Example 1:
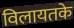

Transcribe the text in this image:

विलायतके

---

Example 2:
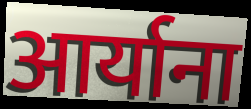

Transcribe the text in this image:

आर्याना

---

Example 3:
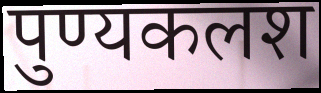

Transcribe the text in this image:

पुण्यकलश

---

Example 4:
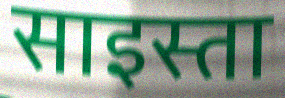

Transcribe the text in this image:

साइस्ता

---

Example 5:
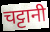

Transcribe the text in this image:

चट्टानी